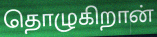
தொழுகிறான்